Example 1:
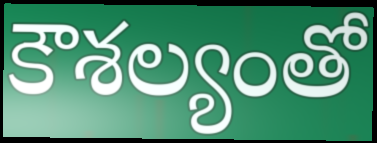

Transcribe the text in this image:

కౌశల్యంతో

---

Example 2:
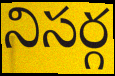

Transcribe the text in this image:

నిసర్గ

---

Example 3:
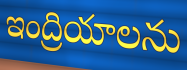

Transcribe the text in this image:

ఇంద్రియాలను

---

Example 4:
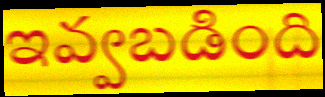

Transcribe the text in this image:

ఇవ్వబడింది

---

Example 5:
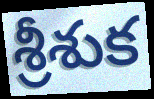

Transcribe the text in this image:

శ్రీశుక